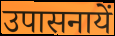
उपासनायें